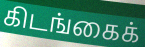
கிடங்கைக்